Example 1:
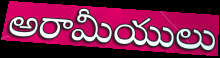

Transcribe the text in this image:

అరామీయులు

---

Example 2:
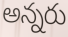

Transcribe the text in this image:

అన్నరు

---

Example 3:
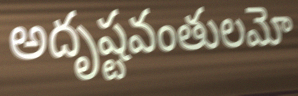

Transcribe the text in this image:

అదృష్టవంతులమో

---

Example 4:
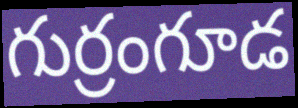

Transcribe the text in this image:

గుర్రంగూడ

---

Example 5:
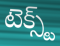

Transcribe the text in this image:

టెక్స్ట్